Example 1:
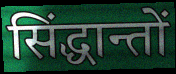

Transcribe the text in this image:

सिंद्धान्तों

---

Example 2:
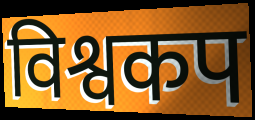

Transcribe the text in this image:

विश्वकप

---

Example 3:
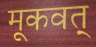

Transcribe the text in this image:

मूकवत्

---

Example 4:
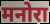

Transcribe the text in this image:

मनोरा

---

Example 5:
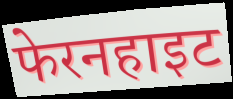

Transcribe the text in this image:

फेरनहाइट